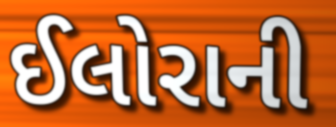
ઈલોરાની